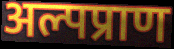
अल्पप्राण